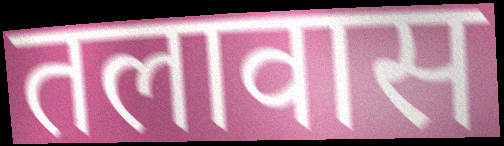
तलावास